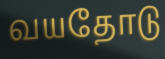
வயதோடு